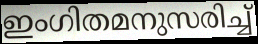
ഇംഗിതമനുസരിച്ച്